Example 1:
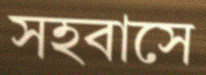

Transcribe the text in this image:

সহবাসে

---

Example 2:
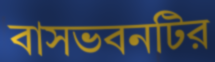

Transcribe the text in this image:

বাসভবনটির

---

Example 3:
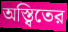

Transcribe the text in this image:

অস্ত্বিতের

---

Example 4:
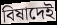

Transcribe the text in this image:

বিষাদেই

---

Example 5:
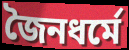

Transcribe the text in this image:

জৈনধর্মে